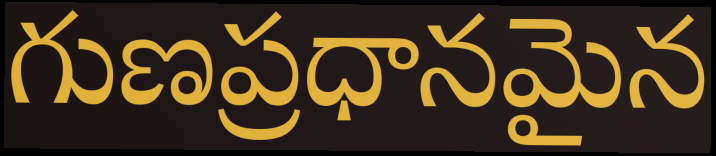
గుణప్రధానమైన